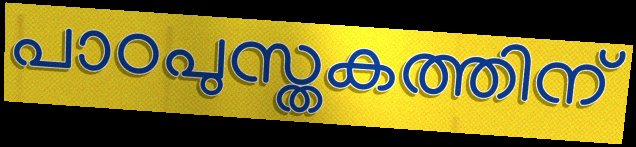
പാഠപുസ്തകത്തിന്